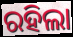
ରହିଲା